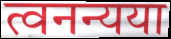
त्वनन्यया